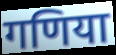
गणिया